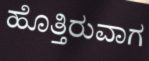
ಹೊತ್ತಿರುವಾಗ